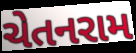
ચેતનરામ